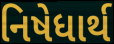
નિષેધાર્થ